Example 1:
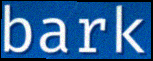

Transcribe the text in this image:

bark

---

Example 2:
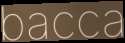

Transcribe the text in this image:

bacca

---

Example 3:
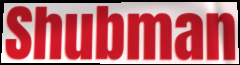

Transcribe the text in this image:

Shubman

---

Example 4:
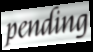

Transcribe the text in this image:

pending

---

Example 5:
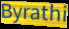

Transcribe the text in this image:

Byrathi